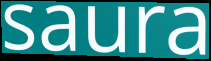
saura